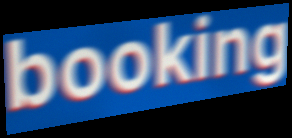
booking